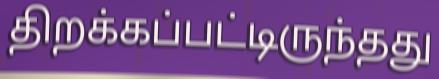
திறக்கப்பட்டிருந்தது